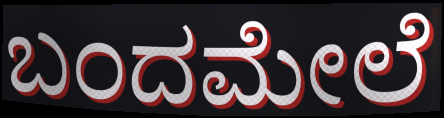
ಬಂದಮೇಲೆ